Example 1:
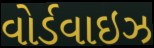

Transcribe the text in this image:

વોર્ડવાઇઝ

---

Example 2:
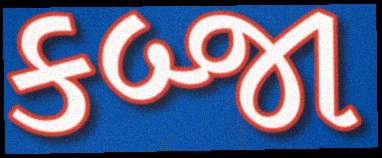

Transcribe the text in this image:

કબ્જા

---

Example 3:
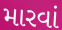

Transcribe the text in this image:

મારવાં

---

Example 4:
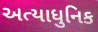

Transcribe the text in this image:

અત્યાધુનિક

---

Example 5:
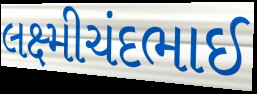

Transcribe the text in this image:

લક્ષ્મીચંદભાઈ